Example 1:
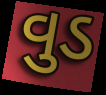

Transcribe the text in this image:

વુડ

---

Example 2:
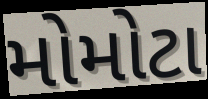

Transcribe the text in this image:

મોમોટા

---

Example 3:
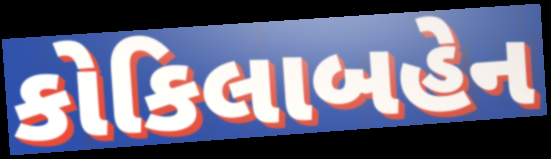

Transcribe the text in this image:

કોકિલાબહેન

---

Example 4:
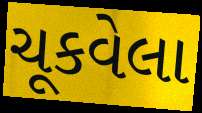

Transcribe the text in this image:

ચૂકવેલા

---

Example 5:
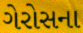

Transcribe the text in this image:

ગેરોસના